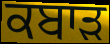
ਕਬਾਡ਼